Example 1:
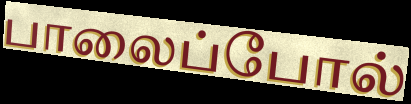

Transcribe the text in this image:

பாலைப்போல்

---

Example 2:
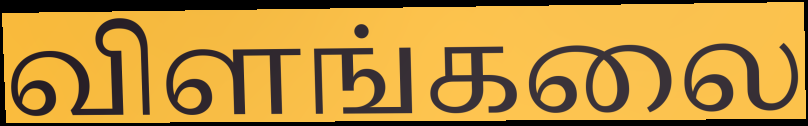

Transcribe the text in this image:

விளங்கலை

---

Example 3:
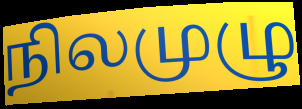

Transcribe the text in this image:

நிலமுழு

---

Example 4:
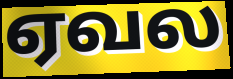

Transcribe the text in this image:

ஏவல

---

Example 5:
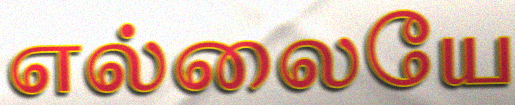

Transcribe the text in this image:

எல்லையே